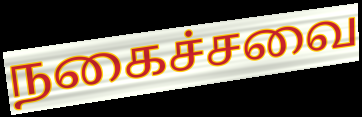
நகைச்சவை